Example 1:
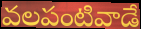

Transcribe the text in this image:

వలపంటివాడే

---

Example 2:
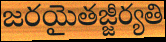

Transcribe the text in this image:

జరయైతజ్జీర్యతి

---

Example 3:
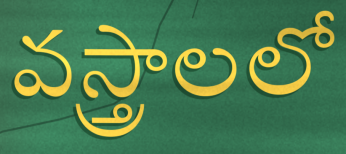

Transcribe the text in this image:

వస్త్రాలలో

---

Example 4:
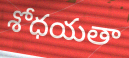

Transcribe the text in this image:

శోధయతా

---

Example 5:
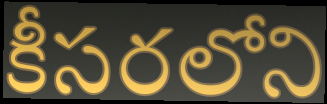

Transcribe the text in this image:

కీసరలోని